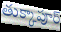
తుక్కాపూర్